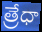
త్రేధా